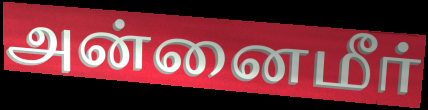
அன்னைமீர்